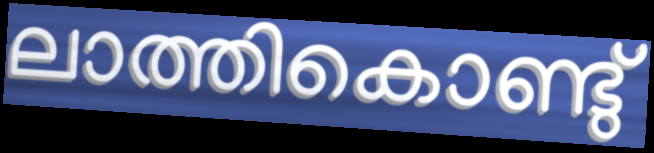
ലാത്തികൊണ്ടു്